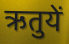
ऋतुयें